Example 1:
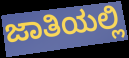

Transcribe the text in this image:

ಜಾತಿಯಲ್ಲಿ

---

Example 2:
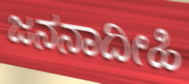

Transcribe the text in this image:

ಜನನಾದೀಹಿ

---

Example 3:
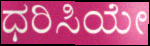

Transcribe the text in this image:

ಧರಿಸಿಯೇ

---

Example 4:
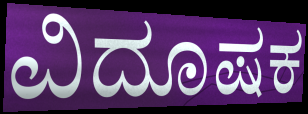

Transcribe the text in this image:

ವಿದೂಷಕ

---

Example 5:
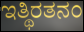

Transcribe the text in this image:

ಇತ್ಥಿರತನಂ